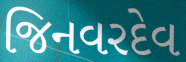
જિનવરદેવ